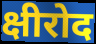
क्षीरोद